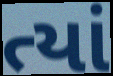
ત્યાં